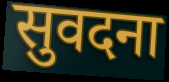
सुवदना